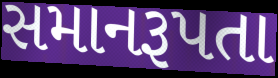
સમાનરૂપતા